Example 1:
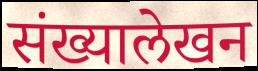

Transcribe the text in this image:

संख्यालेखन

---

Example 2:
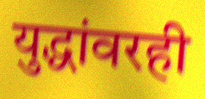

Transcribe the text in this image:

युद्धांवरही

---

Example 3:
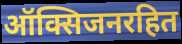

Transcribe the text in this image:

ऑक्सिजनरहित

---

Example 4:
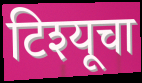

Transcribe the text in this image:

टिश्यूचा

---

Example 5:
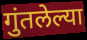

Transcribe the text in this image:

गुंतलेल्या